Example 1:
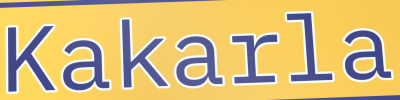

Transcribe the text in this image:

Kakarla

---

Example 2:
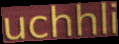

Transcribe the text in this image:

uchhli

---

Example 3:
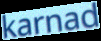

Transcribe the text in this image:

karnad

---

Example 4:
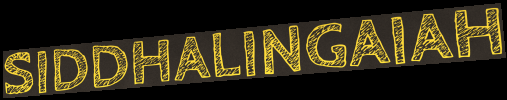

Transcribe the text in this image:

SIDDHALINGAIAH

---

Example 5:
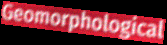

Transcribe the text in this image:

Geomorphological